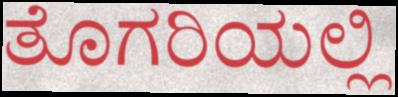
ತೊಗರಿಯಲ್ಲಿ